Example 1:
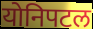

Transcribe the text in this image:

योनिपटल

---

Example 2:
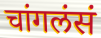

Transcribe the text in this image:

चांगलंसं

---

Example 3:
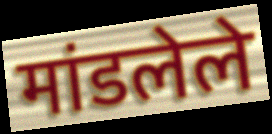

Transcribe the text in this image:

मांडलेले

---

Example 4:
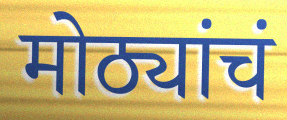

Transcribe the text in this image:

मोठ्यांचं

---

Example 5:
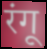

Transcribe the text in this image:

रंगू